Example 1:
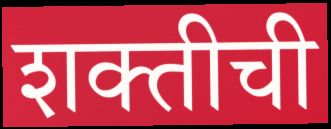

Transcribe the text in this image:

शक्तीची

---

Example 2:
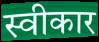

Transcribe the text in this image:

स्वीकार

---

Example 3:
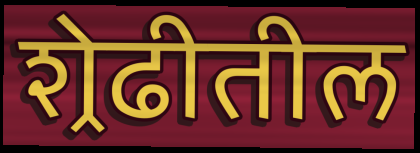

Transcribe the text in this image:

श्रेढीतील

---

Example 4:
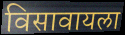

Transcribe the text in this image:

विसावायला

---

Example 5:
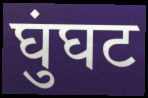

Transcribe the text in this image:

घुंघट